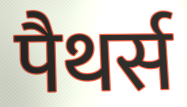
पैथर्स